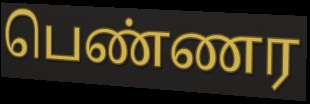
பெண்ணர